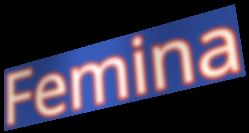
Femina